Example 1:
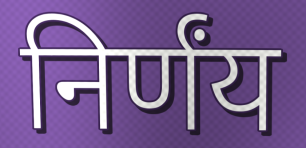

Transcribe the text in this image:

निर्णंय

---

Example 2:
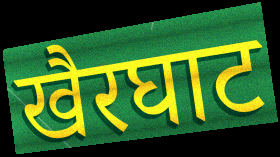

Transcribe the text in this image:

खैरघाट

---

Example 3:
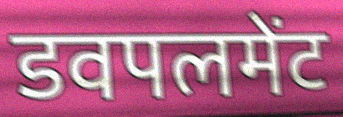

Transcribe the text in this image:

डवपलमेंट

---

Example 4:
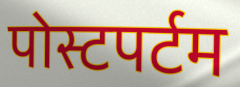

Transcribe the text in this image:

पोस्टपर्टम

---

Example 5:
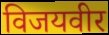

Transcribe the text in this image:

विजयवीर